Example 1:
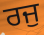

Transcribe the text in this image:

ਰਜੁ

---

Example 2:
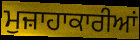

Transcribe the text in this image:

ਮੁਜ਼ਾਹਾਕਾਰੀਆਂ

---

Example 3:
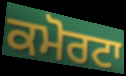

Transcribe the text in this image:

ਕਮੋਰਟਾ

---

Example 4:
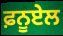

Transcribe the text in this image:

ਫ਼ਨੂਏਲ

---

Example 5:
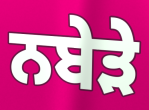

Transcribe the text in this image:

ਨਬੇੜੇ